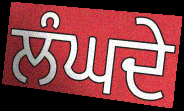
ਲੰਘਦੇ